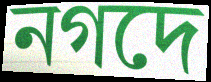
নগদে